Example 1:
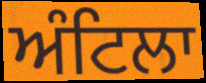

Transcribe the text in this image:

ਅੰਟਿਲਾ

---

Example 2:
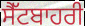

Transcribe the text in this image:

ਸੈੱਟਬਾਹਰੀ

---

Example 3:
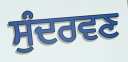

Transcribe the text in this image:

ਸੁੰਦਰਵਣ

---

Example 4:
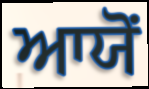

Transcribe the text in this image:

ਆਯੋਂ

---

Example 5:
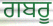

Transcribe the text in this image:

ਗਬਰੂ